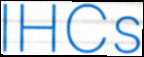
IHCs